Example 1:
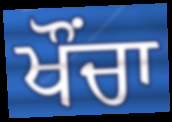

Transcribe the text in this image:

ਖੌੰਚਾ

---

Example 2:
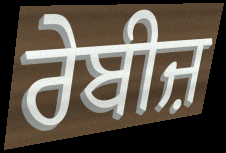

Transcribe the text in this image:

ਰੇਬੀਜ਼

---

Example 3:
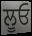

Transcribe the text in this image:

ਲੂਓ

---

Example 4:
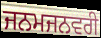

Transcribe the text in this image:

ਜਨਮਜਨਵਰੀ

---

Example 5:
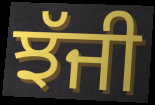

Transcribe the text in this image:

ਝੱਜੀ